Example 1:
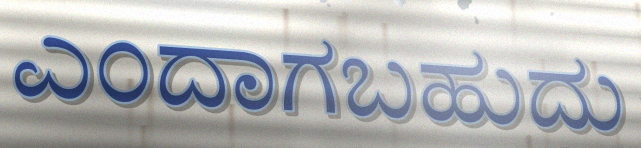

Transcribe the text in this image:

ಎಂದಾಗಬಹುದು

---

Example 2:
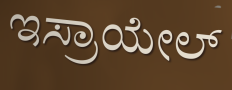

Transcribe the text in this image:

ಇಸ್ರಾಯೇಲ್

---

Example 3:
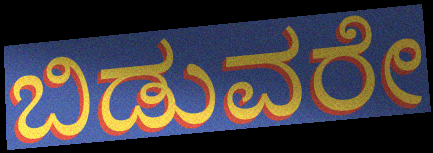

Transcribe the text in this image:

ಬಿಡುವರೇ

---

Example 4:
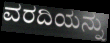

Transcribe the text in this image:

ವರದಿಯನ್ನು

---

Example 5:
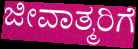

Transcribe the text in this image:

ಜೀವಾತ್ಮರಿಗೆ